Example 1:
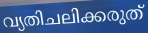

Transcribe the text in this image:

വ്യതിചലിക്കരുത്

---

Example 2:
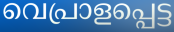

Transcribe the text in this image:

വെപ്രാളപ്പെട്ട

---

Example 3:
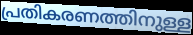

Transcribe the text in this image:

പ്രതികരണത്തിനുള്ള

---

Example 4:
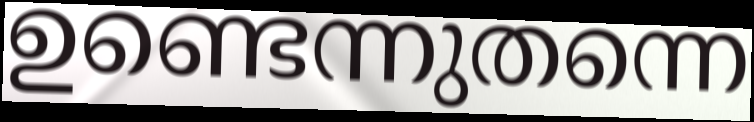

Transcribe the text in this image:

ഉണ്ടെന്നുതന്നെ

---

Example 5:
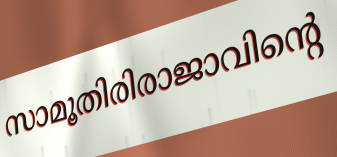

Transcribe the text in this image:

സാമൂതിരിരാജാവിന്റെ